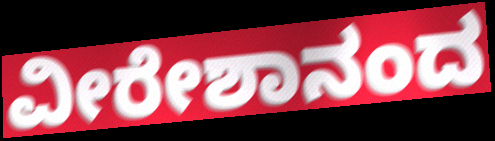
ವೀರೇಶಾನಂದ